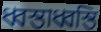
ধ্বস্তাধ্বস্তি